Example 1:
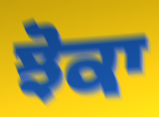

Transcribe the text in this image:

ਝੋਕਾ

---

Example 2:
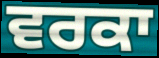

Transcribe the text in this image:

ਵਰਕਾ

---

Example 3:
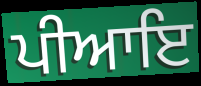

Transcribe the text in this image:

ਪੀਆਇ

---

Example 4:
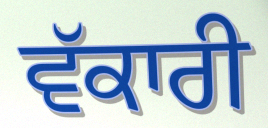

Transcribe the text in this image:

ਵੱਕਾਰੀ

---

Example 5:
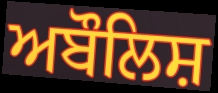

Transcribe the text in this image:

ਅਬੌਲਿਸ਼